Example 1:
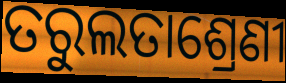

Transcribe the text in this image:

ତରୁଲତାଶ୍ରେଣୀ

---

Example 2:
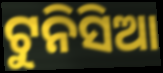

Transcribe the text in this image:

ଟୁନିସିଆ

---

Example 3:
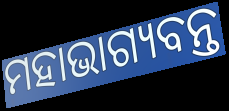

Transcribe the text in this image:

ମହାଭାଗ୍ୟବନ୍ତ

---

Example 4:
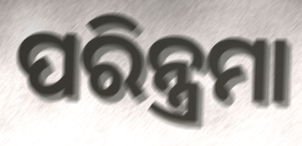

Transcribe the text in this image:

ପରିନ୍ତ୍ରମା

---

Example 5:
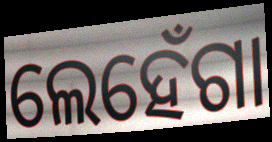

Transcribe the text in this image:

ଲେହେଁଗା